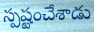
స్పష్టంచేశాడు